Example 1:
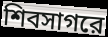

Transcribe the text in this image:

শিবসাগরে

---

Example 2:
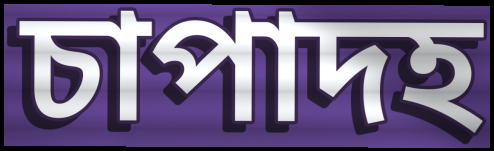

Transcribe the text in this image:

চাপাদহ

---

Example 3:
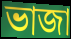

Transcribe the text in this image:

ভাজা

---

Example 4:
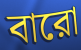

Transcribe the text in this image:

বারো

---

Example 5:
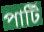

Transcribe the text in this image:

পার্টি